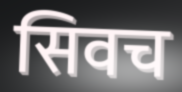
सिवच